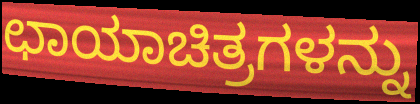
ಛಾಯಾಚಿತ್ರಗಳನ್ನು